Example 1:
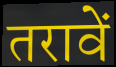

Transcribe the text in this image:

तरावें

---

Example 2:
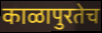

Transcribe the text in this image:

काळापुरतेच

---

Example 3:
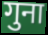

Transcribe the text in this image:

गुना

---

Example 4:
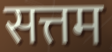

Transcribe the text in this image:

सत्तम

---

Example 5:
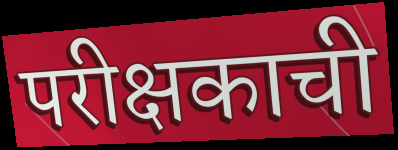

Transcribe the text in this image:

परीक्षकाची